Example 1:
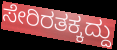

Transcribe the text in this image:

ಸೇರಿರತಕ್ಕದ್ದು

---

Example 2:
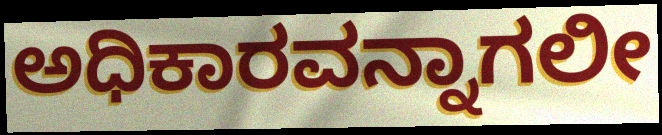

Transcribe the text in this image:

ಅಧಿಕಾರವನ್ನಾಗಲೀ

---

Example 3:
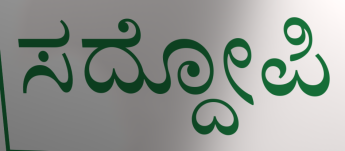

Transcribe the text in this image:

ಸದ್ದೋಪಿ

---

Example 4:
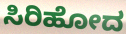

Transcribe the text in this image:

ಸಿರಿಹೋದ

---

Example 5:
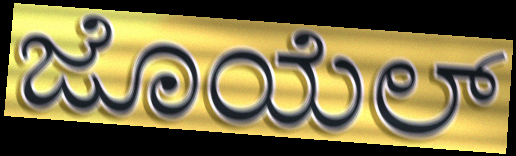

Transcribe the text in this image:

ಜೊಯೆಲ್